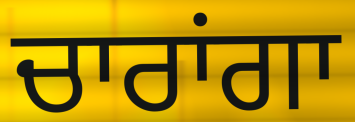
ਚਾਰਾਂਗਾ